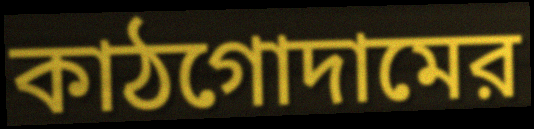
কাঠগোদামের